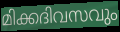
മിക്കദിവസവും